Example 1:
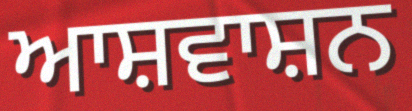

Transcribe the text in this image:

ਆਸ਼ਵਾਸ਼ਨ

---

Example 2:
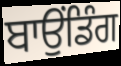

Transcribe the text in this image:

ਬਾਉਂਡਿੰਗ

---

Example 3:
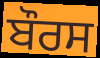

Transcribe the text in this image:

ਬੌਰਸ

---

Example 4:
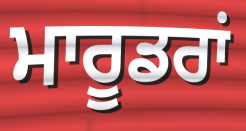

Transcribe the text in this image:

ਮਾਰੂਡਰਾਂ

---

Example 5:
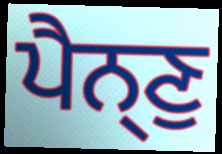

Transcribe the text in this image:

ਪੈਨ੍ਣੁ